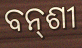
ବନ୍‌ଶୀ